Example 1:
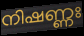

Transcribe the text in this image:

നിഷണ്ണഃ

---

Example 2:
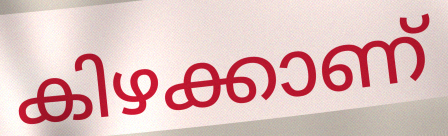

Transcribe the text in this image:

കിഴക്കാണ്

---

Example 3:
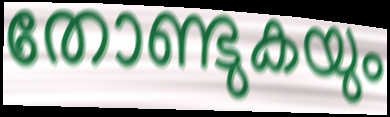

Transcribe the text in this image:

തോണ്ടുകയും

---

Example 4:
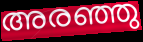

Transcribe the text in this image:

അരഞ്ഞു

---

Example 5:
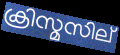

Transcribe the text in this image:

ക്രിസ്മസില്